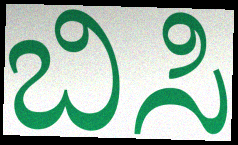
ಬಿಸಿ